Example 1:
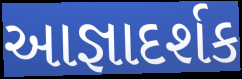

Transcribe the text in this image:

આજ્ઞાદર્શક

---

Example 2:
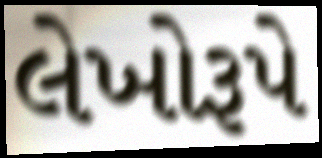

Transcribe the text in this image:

લેખોરૂપે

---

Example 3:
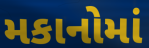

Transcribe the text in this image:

મકાનોમાં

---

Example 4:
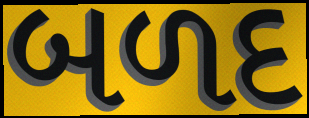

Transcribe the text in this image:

બળદ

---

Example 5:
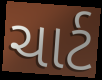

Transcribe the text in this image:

ચાર્ટ